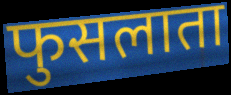
फुसलाता